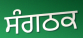
ਸੰਗਠਕ